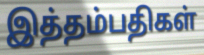
இத்தம்பதிகள்